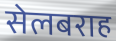
सेलबराह